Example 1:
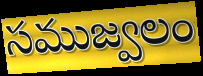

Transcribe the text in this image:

సముజ్వలం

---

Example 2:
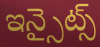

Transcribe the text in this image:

ఇన్సైట్స్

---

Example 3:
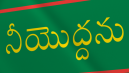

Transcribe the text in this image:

నీయొద్దను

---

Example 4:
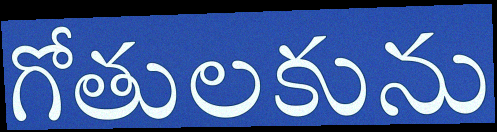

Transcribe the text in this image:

గోతులకును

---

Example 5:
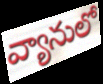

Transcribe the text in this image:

వ్యానులో